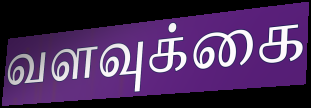
வளவுக்கை